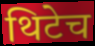
थिटेच